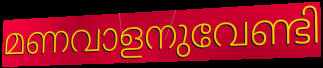
മണവാളനുവേണ്ടി